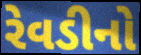
રેવડીનો